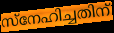
സ്നേഹിച്ചതിന്